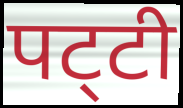
पट्‌टी